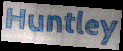
Huntley